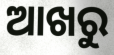
ଆଖରୁ